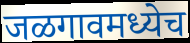
जळगावमध्येच